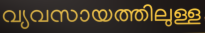
വ്യവസായത്തിലുള്ള